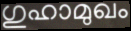
ഗുഹാമുഖം